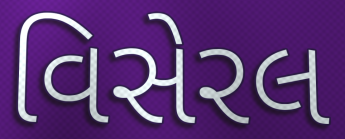
વિસેરલ